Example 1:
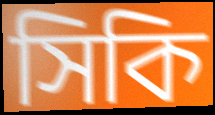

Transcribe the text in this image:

সিকি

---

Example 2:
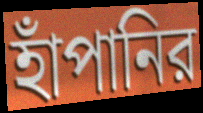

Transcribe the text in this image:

হাঁপানির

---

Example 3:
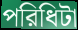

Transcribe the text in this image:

পরিধিটা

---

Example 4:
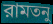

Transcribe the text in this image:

রামতনু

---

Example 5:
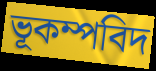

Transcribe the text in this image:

ভূকম্পবিদ